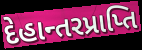
દેહાન્તરપ્રાપ્તિ